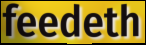
feedeth